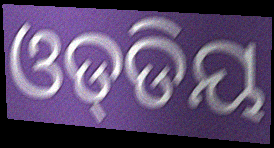
ଓଡ୍‌ଡିୟ